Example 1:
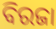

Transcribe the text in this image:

ବିରଜା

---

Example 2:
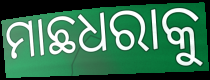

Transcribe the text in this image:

ମାଛଧରାକୁ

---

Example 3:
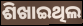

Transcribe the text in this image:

ଶିଖାଇଥିଲ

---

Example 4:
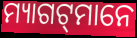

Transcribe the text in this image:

ମ୍ୟାଗଟ୍‌ମାନେ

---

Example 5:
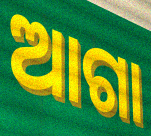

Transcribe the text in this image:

ଆଗା